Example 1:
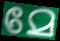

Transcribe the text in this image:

മേ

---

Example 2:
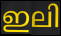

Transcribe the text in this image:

ഇലി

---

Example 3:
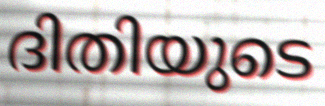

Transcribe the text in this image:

ദിതിയുടെ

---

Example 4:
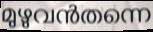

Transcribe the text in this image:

മുഴുവൻതന്നെ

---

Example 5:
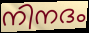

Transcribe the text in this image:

നിനദം